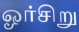
ஓர்சிறு